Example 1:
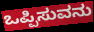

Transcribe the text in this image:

ಒಪ್ಪಿಸುವನು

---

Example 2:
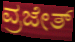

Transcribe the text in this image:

ವ್ರಜೇತ್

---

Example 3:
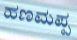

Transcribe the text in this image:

ಹಣಮಪ್ಪ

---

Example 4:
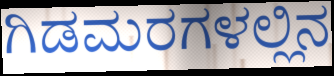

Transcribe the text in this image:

ಗಿಡಮರಗಳಲ್ಲಿನ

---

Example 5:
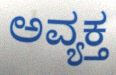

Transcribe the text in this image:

ಅವ್ಯಕ್ತ